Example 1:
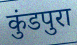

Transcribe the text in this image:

कुंडपुरा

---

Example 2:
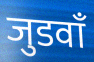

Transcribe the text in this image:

जुडवाँ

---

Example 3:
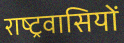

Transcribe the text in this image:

राष्ट्रवासियों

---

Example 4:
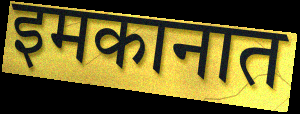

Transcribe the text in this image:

इमकानात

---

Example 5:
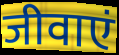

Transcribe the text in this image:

जीवाएं